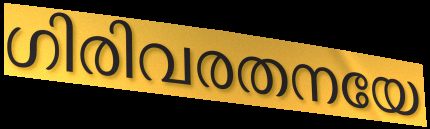
ഗിരിവരതനയേ